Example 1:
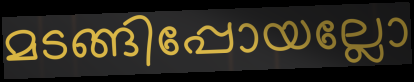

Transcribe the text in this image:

മടങ്ങിപ്പോയല്ലോ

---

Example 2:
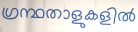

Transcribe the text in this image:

ഗ്രന്ഥതാളുകളിൽ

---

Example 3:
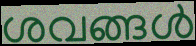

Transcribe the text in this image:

ശവങ്ങൾ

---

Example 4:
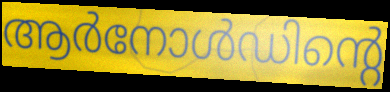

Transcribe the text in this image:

ആർനോൾഡിന്റെ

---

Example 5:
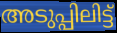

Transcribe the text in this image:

അടുപ്പിലിട്ട്